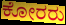
ಕೋರರು